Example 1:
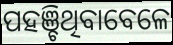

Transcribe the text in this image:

ପହଞ୍ଚିଥିବାବେଳେ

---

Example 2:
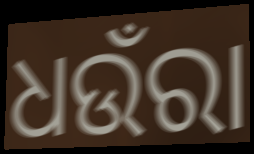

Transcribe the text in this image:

ଧଉଁରା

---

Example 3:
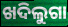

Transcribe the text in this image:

ଖଦିଲୁଗା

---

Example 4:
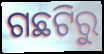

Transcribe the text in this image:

ଗଛଟିରୁ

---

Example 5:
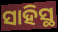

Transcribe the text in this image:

ସାହିସ୍ଥ